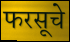
फरसूचे